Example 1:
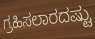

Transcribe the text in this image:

ಗ್ರಹಿಸಲಾರದಷ್ಟು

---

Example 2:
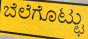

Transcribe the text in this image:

ಬೆಲೆಗೊಟ್ಟು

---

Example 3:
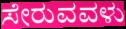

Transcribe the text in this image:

ಸೇರುವವಳು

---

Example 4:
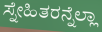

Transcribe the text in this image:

ಸ್ನೇಹಿತರನ್ನೆಲ್ಲಾ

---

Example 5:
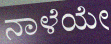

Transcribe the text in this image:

ನಾಳೆಯೇ